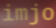
imjo